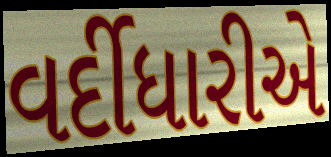
વર્દીધારીએ